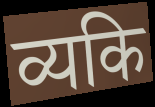
व्यकि